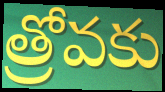
త్రోవకు